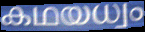
കഥയധ്വം